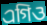
এগিও